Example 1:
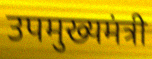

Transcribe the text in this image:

उपमुख्यमंत्री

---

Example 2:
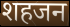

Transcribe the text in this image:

शहजन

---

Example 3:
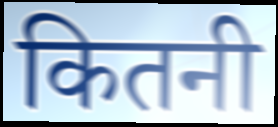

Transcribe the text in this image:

कितनी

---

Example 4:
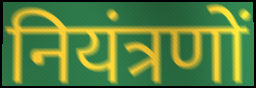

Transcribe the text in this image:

नियंत्रणों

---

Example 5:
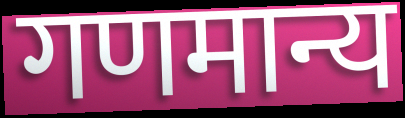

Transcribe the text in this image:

गणमान्य